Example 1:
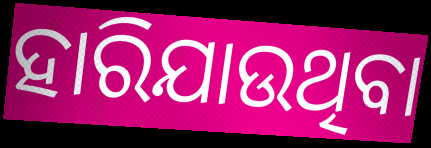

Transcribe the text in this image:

ହାରିଯାଉଥିବା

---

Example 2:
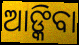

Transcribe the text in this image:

ଆଙ୍କିବା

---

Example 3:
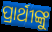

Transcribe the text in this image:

ପ୍ରାର୍ଥୀଙ୍କୁ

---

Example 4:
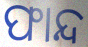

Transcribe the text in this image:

ଫାନ୍ଦ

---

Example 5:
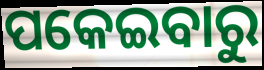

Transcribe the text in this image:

ପକେଇବାରୁ